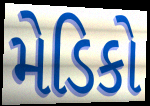
મેડિકો